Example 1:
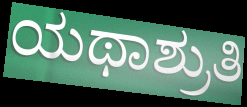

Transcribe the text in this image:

ಯಥಾಶ್ರುತಿ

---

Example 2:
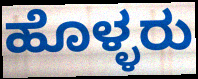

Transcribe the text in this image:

ಹೊಳ್ಳರು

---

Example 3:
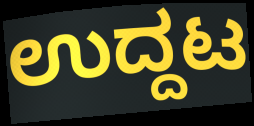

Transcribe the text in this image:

ಉದ್ದಟ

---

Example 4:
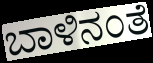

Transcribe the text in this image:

ಬಾಳಿನಂತೆ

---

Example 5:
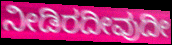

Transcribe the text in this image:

ನೀಡಿರದೀವುದೀ